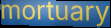
mortuary